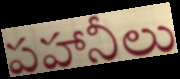
పహానీలు